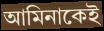
আমিনাকেই